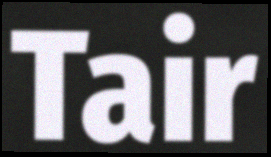
Tair